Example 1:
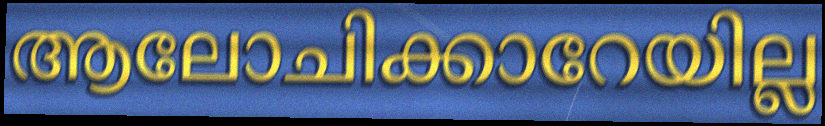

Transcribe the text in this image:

ആലോചിക്കാറേയില്ല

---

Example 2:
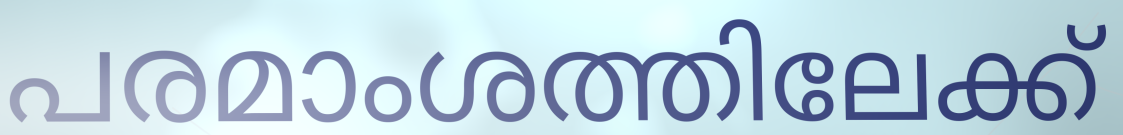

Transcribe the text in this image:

പരമാംശത്തിലേക്ക്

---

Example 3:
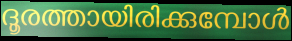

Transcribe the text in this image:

ദൂരത്തായിരിക്കുമ്പോൾ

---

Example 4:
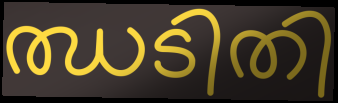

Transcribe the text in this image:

ഝടിതി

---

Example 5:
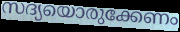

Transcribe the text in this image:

സദ്യയൊരുക്കേണം